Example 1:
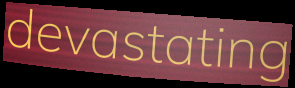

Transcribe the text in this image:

devastating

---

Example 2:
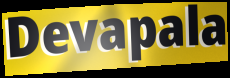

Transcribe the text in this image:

Devapala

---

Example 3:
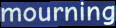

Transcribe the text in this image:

mourning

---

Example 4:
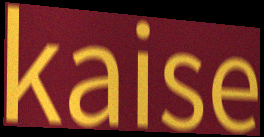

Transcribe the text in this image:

kaise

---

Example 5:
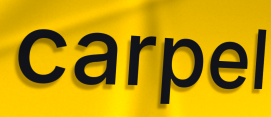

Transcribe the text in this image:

carpel